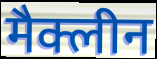
मैक्लीन